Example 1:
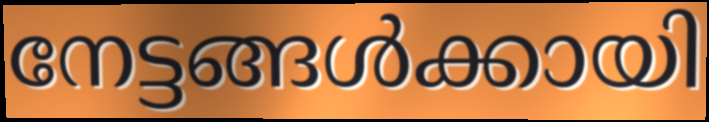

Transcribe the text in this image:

നേട്ടങ്ങൾക്കായി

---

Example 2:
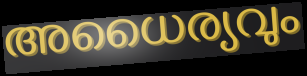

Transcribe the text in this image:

അധൈര്യവും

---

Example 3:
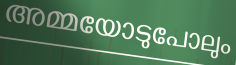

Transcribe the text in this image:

അമ്മയോടുപോലും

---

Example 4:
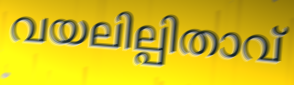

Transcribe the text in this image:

വയലില്പിതാവ്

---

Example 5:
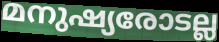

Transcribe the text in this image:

മനുഷ്യരോടല്ല